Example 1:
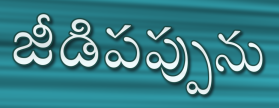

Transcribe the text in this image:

జీడిపప్పును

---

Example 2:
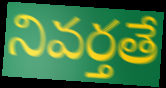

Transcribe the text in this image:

నివర్తతే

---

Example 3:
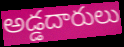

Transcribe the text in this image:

అడ్డదారులు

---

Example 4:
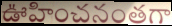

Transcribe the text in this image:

ఊహించనంతగా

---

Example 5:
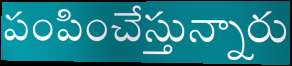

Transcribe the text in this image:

పంపించేస్తున్నారు